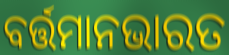
ବର୍ତ୍ତମାନଭାରତ